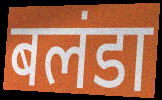
बलंडा